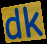
dk